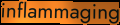
inflammaging